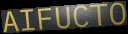
AIFUCTO